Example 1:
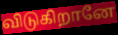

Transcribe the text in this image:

விடுகிறானே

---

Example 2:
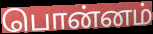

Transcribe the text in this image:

பொன்னம்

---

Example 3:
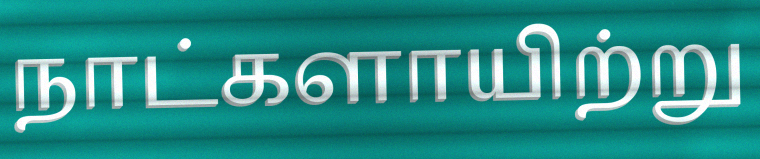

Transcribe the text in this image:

நாட்களாயிற்று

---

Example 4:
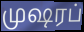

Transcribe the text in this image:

முஷரப்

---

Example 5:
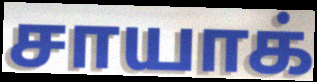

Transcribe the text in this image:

சாயாக்